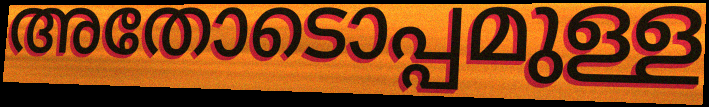
അതോടൊപ്പമുള്ള